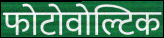
फोटोवोल्टिक